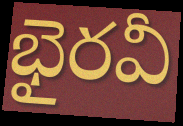
భైరవీ